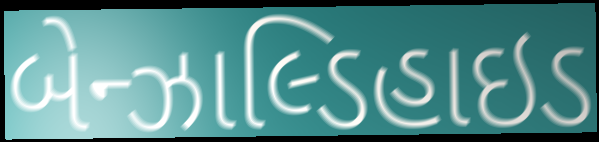
બેન્ઝાલ્ડિહાઇડ